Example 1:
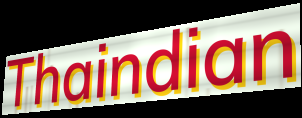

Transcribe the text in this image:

Thaindian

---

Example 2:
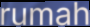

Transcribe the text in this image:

rumah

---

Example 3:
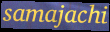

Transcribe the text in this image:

samajachi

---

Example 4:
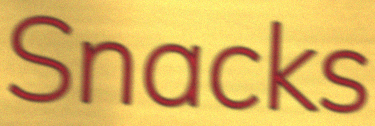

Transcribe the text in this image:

Snacks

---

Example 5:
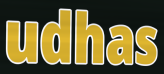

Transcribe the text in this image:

udhas